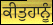
ਕੀਤੁਹਾਨੂੰ